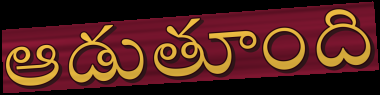
ఆడుతూంది